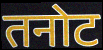
तनोट